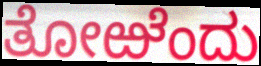
ತೋಱೆಂದು